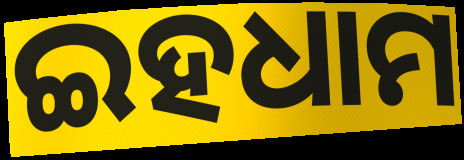
ଇହଧାମ